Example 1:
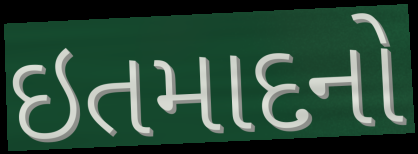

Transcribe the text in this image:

ઇતમાદનો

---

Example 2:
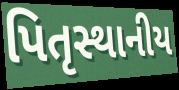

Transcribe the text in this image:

પિતૃસ્થાનીય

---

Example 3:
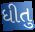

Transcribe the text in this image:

ધીતુ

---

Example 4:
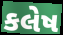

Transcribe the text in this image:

કલેષ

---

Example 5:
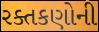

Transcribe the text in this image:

રક્તકણોની